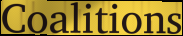
Coalitions